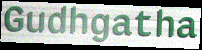
Gudhgatha